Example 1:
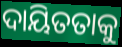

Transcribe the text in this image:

ଦାୟିତତାକୁ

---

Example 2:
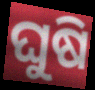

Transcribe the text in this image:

ଘୁଷି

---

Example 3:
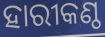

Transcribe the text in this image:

ହାରୀକଣ୍ଠ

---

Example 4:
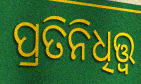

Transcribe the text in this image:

ପ୍ରତିନିଧିତ୍ତ୍ୱ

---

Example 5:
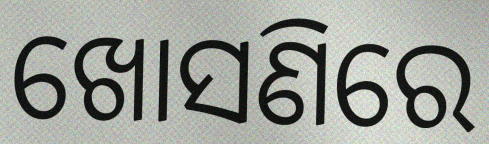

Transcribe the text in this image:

ଖୋସଣିରେ